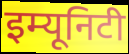
इम्यूनिटी